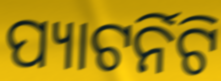
ପ୍ୟାଟର୍ନିଟି